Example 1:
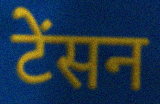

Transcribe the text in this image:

टेंसन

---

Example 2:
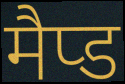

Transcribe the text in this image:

मैप्ड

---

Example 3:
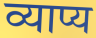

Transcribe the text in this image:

व्याप्य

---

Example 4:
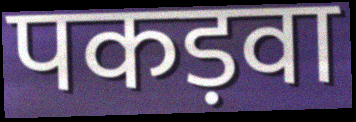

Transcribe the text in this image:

पकड़वा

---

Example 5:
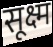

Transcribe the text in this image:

सूक्ष्‍म